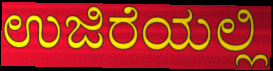
ಉಜಿರೆಯಲ್ಲಿ